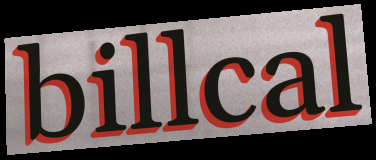
billcal